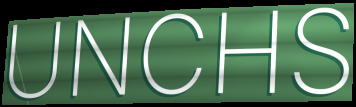
UNCHS